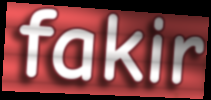
fakir